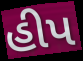
હીપ